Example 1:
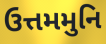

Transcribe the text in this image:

ઉત્તમમુનિ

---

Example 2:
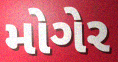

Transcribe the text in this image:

મોગેર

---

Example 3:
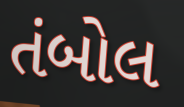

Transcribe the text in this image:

તંબોલ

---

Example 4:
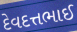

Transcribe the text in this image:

દેવદત્તભાઈ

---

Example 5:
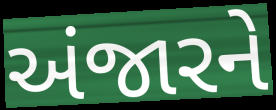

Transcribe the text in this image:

અંજારને